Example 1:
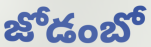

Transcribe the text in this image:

జోడంబో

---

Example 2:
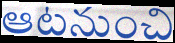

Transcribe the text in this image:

ఆటనుంచి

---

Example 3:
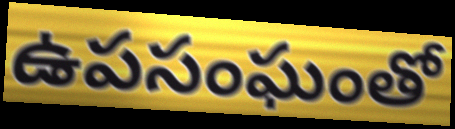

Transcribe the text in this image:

ఉపసంఘంతో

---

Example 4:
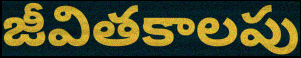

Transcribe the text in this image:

జీవితకాలపు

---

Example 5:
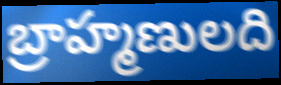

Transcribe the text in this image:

బ్రాహ్మణులది